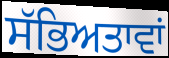
ਸੱਭਿਅਤਾਵਾਂ